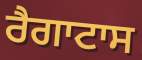
ਰੈਗਾਟਾਸ